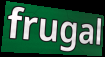
frugal